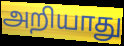
அறியாது